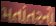
મતાંતરનો